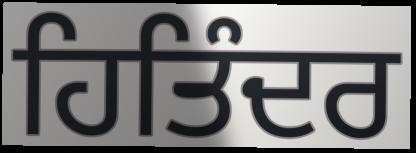
ਹਿਤਿੰਦਰ